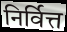
निर्वित्त